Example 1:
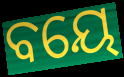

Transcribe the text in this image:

ବୟେ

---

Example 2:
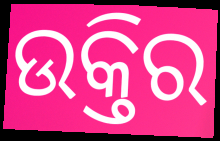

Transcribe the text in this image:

ଉକ୍ତିର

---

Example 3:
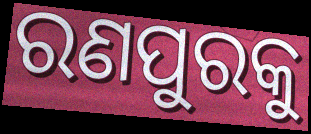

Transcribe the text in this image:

ରଣପୁରକୁ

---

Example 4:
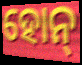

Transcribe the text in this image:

ହୋନ୍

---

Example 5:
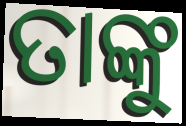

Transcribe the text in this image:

ତାଙ୍କୁ